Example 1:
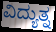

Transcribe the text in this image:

ವಿದ್ಯುತ್ನ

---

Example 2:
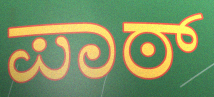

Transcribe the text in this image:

ಪಾಠ್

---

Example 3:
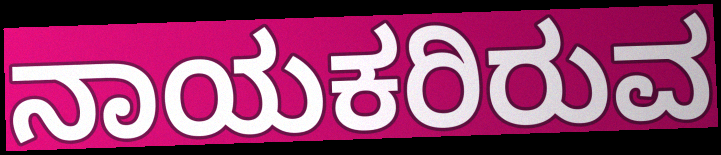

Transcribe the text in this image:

ನಾಯಕರಿರುವ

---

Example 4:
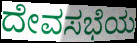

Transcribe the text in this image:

ದೇವಸಭೆಯ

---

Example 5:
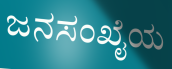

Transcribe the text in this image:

ಜನಸಂಖೈಯ